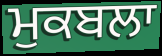
ਮੁਕਬਲਾ